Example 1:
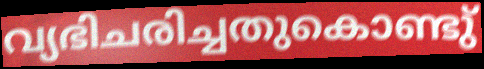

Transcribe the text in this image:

വ്യഭിചരിച്ചതുകൊണ്ടു്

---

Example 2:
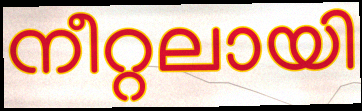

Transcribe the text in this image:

നീറ്റലായി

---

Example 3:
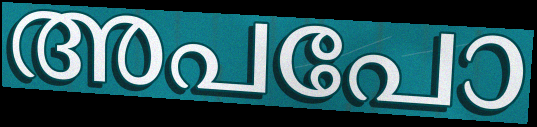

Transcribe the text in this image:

അപപോ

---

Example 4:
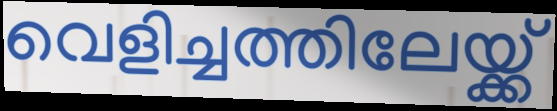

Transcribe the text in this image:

വെളിച്ചത്തിലേയ്ക്ക്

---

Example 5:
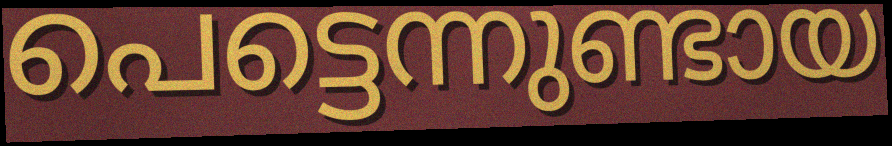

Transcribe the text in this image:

പെട്ടെന്നുണ്ടായ